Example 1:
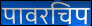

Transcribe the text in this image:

पावरचिप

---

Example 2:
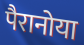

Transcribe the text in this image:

पैरानोया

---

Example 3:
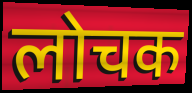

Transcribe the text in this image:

लोचक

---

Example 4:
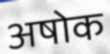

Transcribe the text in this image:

अषोक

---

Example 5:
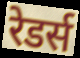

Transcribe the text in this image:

रेडर्स